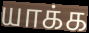
யாக்க